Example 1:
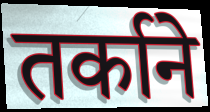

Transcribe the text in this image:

तर्काने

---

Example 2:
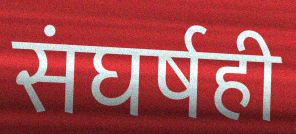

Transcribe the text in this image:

संघर्षही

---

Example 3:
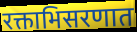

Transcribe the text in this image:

रक्ताभिसरणात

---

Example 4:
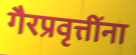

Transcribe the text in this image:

गैरप्रवृत्तींना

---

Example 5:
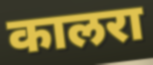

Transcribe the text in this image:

कालरा